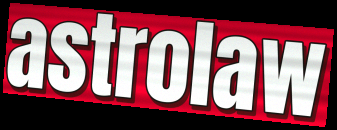
astrolaw